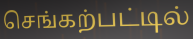
செங்கற்பட்டில்